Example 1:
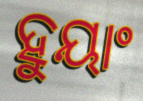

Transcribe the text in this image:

ହୁୟାଂ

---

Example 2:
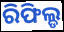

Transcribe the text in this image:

ରିଫିଲ୍ଡ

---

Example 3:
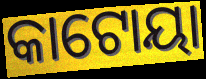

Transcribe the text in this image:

କାଟୋୟା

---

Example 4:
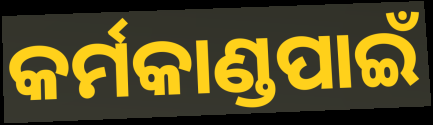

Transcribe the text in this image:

କର୍ମକାଣ୍ଡପାଇଁ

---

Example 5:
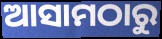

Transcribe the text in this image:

ଆସାମଠାରୁ